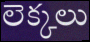
లెక్కలు